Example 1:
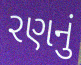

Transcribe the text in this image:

રણનું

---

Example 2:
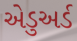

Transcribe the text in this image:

એડુઅર્ડ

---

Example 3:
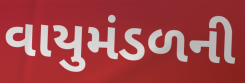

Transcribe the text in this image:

વાયુમંડળની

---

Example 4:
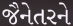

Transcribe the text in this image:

જૈનેતરને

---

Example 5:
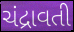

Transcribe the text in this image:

ચંદ્રાવતી